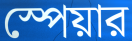
স্পেয়ার